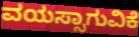
ವಯಸ್ಸಾಗುವಿಕೆ